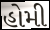
હોમી